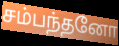
சம்பந்தனோ